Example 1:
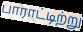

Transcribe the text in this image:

பாராட்டிற்று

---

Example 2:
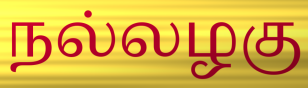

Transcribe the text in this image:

நல்லழகு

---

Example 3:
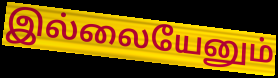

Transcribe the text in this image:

இல்லையேனும்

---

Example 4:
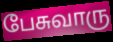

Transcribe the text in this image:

பேசுவாரு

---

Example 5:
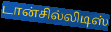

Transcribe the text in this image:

டான்சில்லிடிஸ்